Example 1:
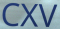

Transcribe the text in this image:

CXV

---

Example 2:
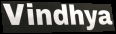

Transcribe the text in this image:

Vindhya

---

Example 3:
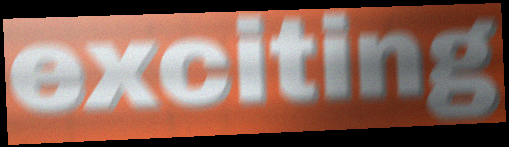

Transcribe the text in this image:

exciting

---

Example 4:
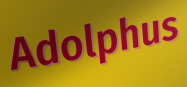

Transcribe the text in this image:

Adolphus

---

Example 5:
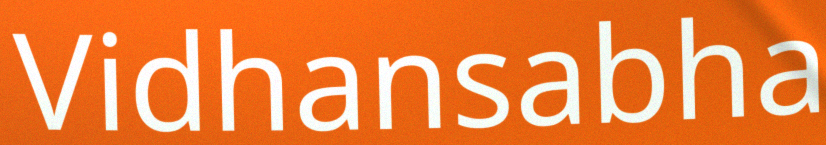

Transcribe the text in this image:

Vidhansabha